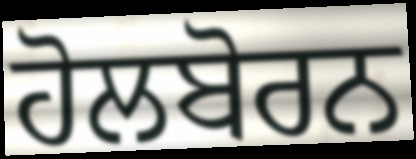
ਹੋਲਬੋਰਨ